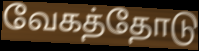
வேகத்தோடு